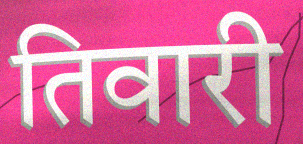
तिवारी